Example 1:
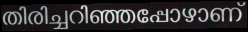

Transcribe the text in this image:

തിരിച്ചറിഞ്ഞപ്പോഴാണ്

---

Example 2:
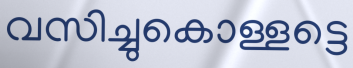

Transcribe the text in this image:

വസിച്ചുകൊള്ളട്ടെ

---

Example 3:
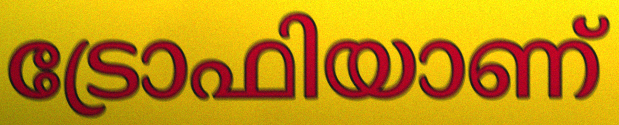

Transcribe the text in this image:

ട്രോഫിയാണ്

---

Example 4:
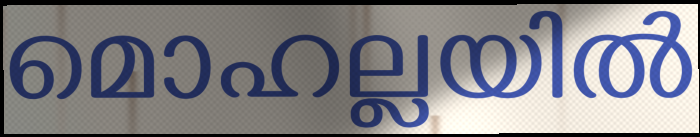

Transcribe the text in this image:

മൊഹല്ലയിൽ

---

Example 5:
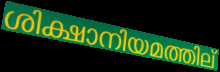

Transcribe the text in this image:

ശിക്ഷാനിയമത്തില്